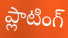
ప్లాటింగ్